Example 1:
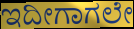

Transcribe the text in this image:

ಇದೀಗಾಗಲೇ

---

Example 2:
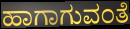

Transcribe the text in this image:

ಹಾಗಾಗುವಂತೆ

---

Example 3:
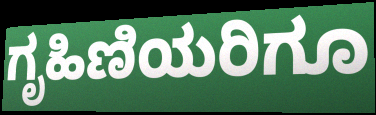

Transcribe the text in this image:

ಗೃಹಿಣಿಯರಿಗೂ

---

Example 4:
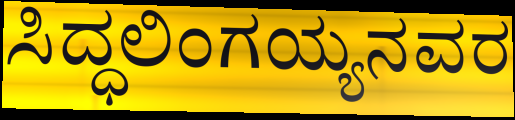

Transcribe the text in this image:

ಸಿದ್ಧಲಿಂಗಯ್ಯನವರ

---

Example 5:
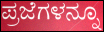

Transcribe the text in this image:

ಪ್ರಜೆಗಳನ್ನೂ